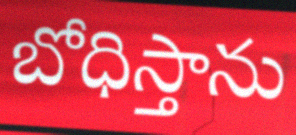
బోధిస్తాను